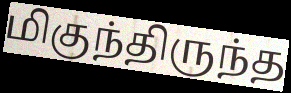
மிகுந்திருந்த